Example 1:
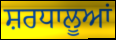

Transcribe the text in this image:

ਸ਼ਰਧਾਲੂਆਂ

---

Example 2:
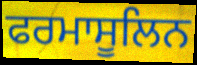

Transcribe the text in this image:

ਫਰਮਾਸੂਲਿਨ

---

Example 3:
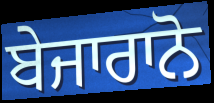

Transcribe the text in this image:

ਬੇਜਾਰਾਨੋ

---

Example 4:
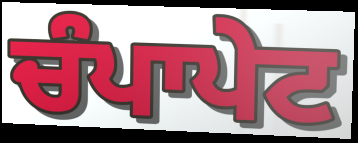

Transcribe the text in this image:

ਚੰਪਾਪੇਟ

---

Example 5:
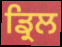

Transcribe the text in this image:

ਡ੍ਰਿਲ